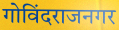
गोविंदराजनगर